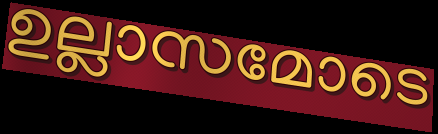
ഉല്ലാസമോടെ